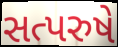
સત્પરુષે